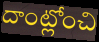
దాంట్లోంచి